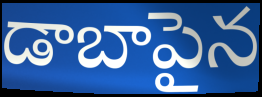
డాబాపైన